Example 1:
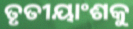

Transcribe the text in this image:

ତୃତୀୟାଂଶକୁ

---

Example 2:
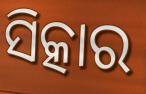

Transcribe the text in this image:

ସିତ୍କାର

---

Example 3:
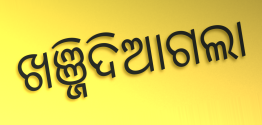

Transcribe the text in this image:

ଖଞ୍ଜିଦିଆଗଲା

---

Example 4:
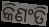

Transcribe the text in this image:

କିଣଂତି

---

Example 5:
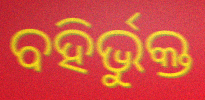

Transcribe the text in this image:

ବହିର୍ଭୁକ୍ତ